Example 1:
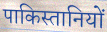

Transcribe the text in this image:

पाकिस्तानियों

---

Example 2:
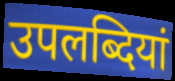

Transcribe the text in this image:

उपलब्दियां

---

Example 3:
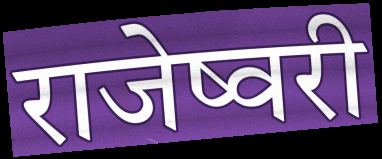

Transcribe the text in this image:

राजेष्वरी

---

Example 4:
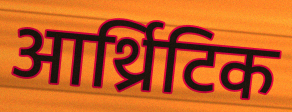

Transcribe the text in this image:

आर्थ्रिटिक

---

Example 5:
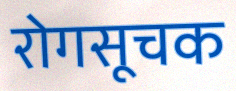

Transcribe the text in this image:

रोगसूचक